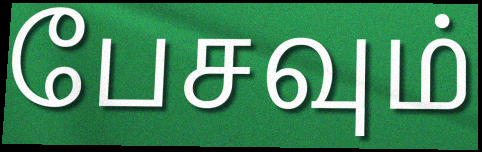
பேசவும்